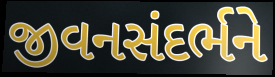
જીવનસંદર્ભને